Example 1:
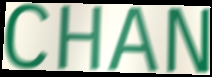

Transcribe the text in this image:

CHAN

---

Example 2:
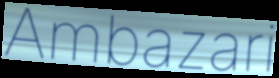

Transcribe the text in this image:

Ambazari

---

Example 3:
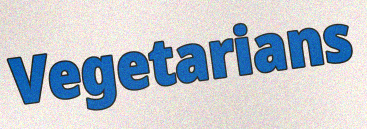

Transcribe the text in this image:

Vegetarians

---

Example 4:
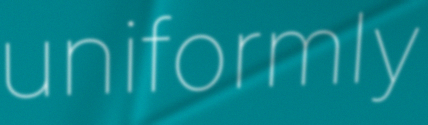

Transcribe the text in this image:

uniformly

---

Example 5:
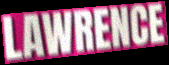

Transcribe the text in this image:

LAWRENCE